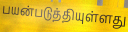
பயன்படுத்தியுள்ளது